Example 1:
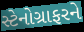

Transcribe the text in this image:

સ્ટેનોગ્રાફરને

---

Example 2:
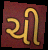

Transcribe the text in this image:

ચી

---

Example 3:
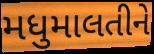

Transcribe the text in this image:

મધુમાલતીને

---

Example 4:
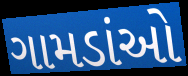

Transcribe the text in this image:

ગામડાંઓ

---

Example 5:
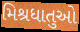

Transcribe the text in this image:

મિશ્રધાતુઓ